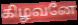
கிழவனே